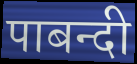
पाबन्दी